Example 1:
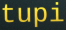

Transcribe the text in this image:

tupi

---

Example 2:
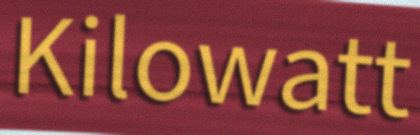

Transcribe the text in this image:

Kilowatt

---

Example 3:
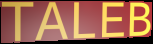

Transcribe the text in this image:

TALEB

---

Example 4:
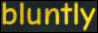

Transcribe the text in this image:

bluntly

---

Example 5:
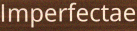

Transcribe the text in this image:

Imperfectae